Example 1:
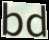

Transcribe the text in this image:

bd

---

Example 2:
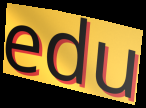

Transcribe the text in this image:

edu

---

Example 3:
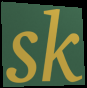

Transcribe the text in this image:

sk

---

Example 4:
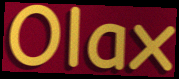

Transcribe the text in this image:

Olax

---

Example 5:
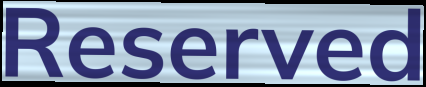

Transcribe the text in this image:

Reserved